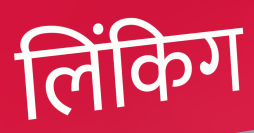
लिंकिग